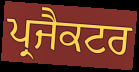
ਪ੍ਰਜੈਕਟਰ